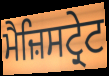
ਮੈਜ਼ਿਸਟ੍ਰੇਟ